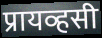
प्रायव्हसी